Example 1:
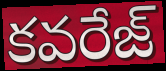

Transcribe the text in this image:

కవరేజ్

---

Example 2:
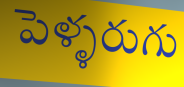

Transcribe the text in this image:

పెళ్ళరుగు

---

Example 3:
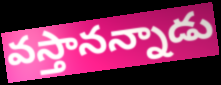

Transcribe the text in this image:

వస్తానన్నాడు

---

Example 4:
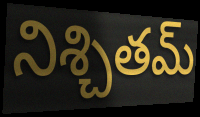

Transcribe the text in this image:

నిశ్చితమ్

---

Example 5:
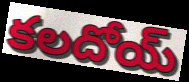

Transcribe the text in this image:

కలదోయ్